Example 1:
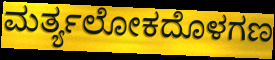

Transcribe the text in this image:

ಮರ್ತ್ಯಲೋಕದೊಳಗಣ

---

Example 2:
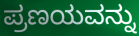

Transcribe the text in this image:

ಪ್ರಣಯವನ್ನು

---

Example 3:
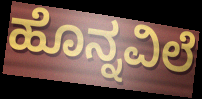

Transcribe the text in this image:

ಹೊನ್ನವಿಲೆ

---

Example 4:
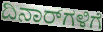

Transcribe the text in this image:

ದಿನಾರ್‌ಗಳಿಗೆ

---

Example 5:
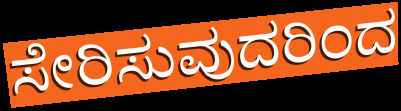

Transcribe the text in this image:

ಸೇರಿಸುವುದರಿಂದ